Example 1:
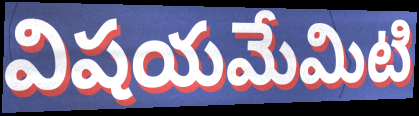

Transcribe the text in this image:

విషయమేమిటి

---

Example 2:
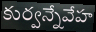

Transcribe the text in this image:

కుర్వన్నేవేహ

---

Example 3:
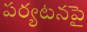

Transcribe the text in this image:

పర్యటనపై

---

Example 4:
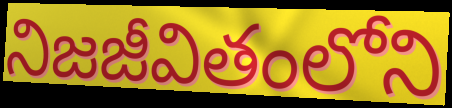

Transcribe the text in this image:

నిజజీవితంలోని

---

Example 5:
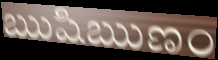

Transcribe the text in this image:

ఋషిఋణం